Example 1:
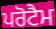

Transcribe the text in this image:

ਪਰੋਟੈਮ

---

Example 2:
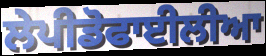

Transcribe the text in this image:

ਲੇਪੀਡੋਫਾਈਲੀਆ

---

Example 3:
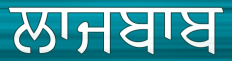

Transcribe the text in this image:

ਲਾਜਬਾਬ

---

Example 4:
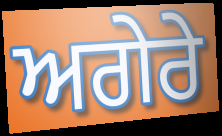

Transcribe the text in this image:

ਅਗੇਰੇ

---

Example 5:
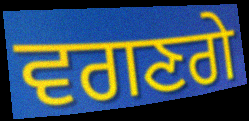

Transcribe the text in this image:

ਵਗਣਗੇ